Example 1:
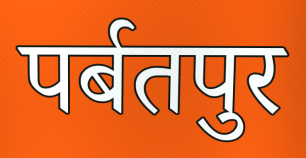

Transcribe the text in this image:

पर्बतपुर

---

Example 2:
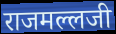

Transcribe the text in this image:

राजमल्लजी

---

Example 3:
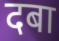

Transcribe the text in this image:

दबा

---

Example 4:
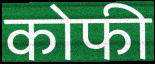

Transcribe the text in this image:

कोफी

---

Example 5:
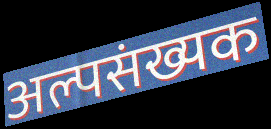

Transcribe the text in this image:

अल्‍पसंख्‍यक